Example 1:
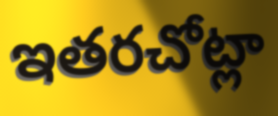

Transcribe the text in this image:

ఇతరచోట్లా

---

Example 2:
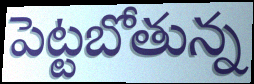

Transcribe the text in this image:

పెట్టబోతున్న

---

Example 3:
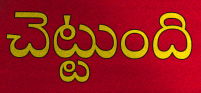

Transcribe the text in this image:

చెట్టుంది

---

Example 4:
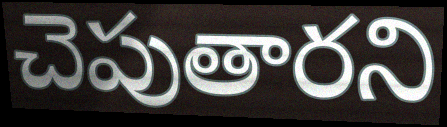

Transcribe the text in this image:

చెపుతారని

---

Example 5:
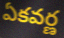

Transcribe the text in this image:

ఏకవర్ణ